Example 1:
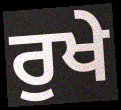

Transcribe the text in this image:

ਰੁਖੇ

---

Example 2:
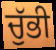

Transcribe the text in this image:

ਚੁੱਭੀ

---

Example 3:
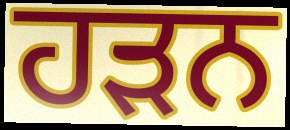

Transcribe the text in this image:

ਹੜਨ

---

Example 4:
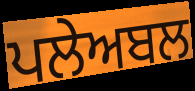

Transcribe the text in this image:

ਪਲੇਅਬਲ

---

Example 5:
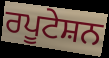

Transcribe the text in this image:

ਰਪੂਟੇਸ਼ਨ